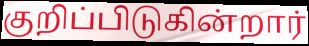
குறிப்பிடுகின்றார்